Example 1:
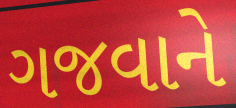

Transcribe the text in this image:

ગજવાને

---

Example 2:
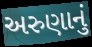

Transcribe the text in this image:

અરુણાનું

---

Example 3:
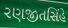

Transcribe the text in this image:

રણજીતસિંહે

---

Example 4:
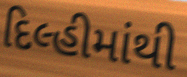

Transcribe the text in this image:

દિલ્હીમાંથી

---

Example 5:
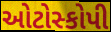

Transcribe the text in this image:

ઓટોસ્કોપી